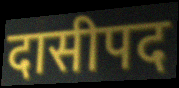
दासीपद